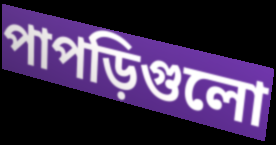
পাপড়িগুলো